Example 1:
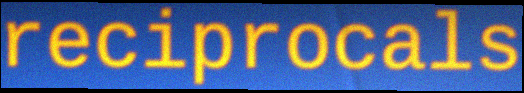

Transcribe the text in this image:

reciprocals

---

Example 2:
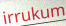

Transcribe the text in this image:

irrukum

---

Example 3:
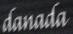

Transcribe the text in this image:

danada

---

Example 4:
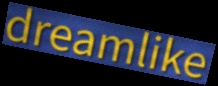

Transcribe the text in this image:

dreamlike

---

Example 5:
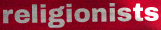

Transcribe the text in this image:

religionists